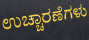
ಉಚ್ಚಾರಣೆಗಳು